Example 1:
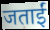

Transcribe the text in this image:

जताईं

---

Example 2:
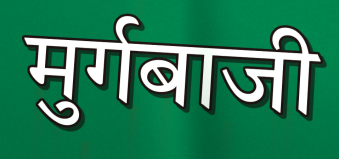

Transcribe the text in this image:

मुर्गबाजी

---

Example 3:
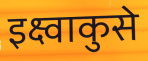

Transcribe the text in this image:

इक्ष्वाकुसे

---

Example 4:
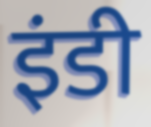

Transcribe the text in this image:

इंडी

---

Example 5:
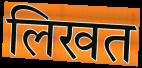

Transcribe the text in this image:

लिखत